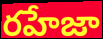
రహేజా